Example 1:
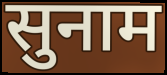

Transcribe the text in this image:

सुनाम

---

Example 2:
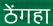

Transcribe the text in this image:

ठेंगहा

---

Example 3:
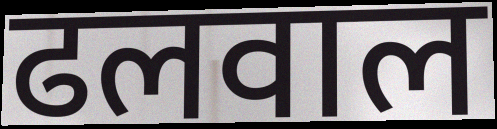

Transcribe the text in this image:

ढलवाल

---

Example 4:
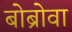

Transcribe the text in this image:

बोब्रोवा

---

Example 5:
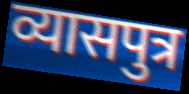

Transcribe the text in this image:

व्यासपुत्र